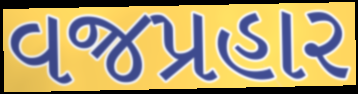
વજ્રપ્રહાર